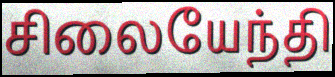
சிலையேந்தி